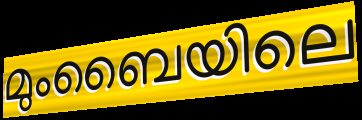
മുംബൈയിലെ